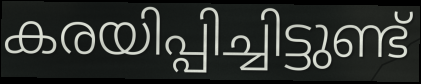
കരയിപ്പിച്ചിട്ടുണ്ട്